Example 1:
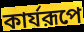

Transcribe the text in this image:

কার্যরূপে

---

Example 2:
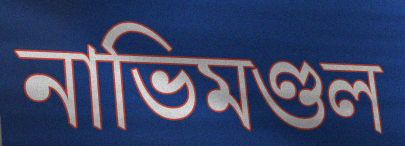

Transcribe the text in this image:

নাভিমণ্ডল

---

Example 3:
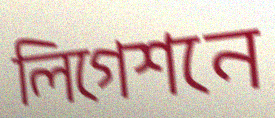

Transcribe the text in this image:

লিগেশনে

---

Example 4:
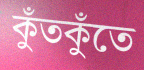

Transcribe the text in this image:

কুঁতকুঁতে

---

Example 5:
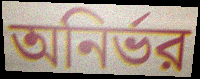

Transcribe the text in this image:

অনির্ভর